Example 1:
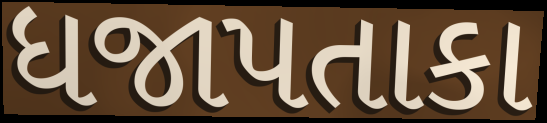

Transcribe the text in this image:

ધજાપતાકા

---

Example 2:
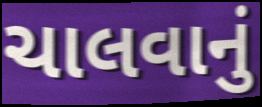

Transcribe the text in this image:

ચાલવાનું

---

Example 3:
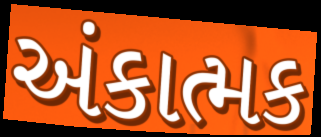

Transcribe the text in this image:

અંકાત્મક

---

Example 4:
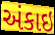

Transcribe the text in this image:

અંકાઇ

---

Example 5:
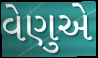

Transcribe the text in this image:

વેણુએ